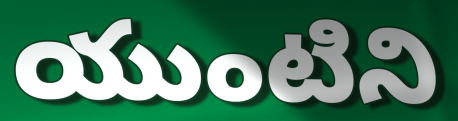
యుంటిని